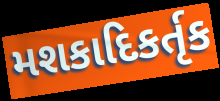
મશકાદિકર્તૃક